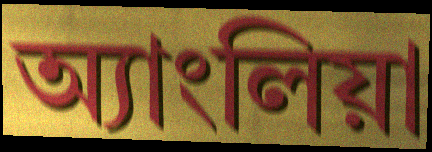
অ্যাংলিয়া